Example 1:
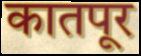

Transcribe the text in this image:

कातपूर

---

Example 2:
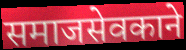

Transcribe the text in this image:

समाजसेवकाने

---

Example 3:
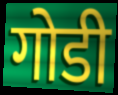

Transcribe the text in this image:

गोडी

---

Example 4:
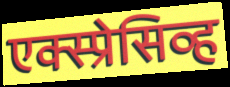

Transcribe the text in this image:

एक्स्प्रेसिव्ह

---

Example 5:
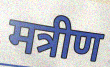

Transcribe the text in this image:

मत्रीण